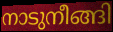
നാടുനീങ്ങി